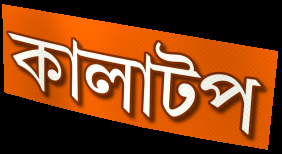
কালাটপ